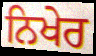
ਨਿਖੇਰ